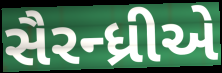
સૈરન્ધ્રીએ